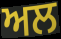
ਅਲ